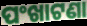
ପଂଖାଟଣା